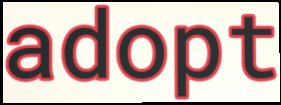
adopt